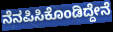
ನೆನಪಿಸಿಕೊಂಡಿದ್ದೇನೆ